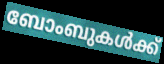
ബോംബുകൾക്ക്